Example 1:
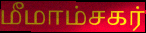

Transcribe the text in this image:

மீமாம்சகர்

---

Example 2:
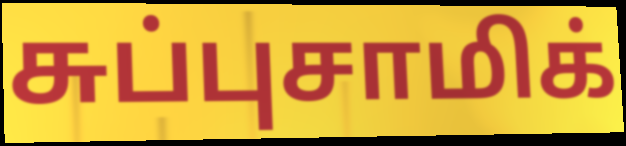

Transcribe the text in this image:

சுப்புசாமிக்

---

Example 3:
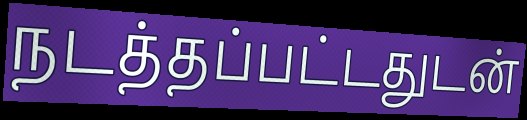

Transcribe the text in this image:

நடத்தப்பட்டதுடன்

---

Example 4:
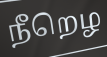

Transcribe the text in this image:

நீறெழ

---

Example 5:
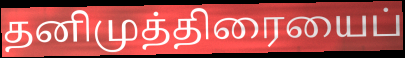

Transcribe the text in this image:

தனிமுத்திரையைப்